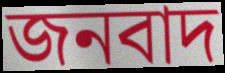
জনবাদ